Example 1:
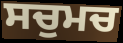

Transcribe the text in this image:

ਸਚੁਮਚ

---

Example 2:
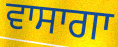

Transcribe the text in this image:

ਵਾਸਾਗਾ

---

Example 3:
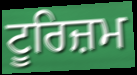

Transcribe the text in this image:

ਟੂਰਿਜ਼ਮ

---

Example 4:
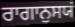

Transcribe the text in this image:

ਰਾਗਾਨੁਸਯਂ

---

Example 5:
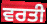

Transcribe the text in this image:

ਵਰਤੀ